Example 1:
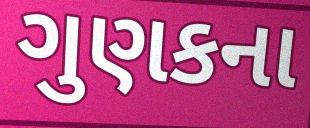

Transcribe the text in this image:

ગુણકના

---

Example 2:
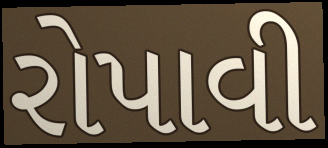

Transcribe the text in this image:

રોપાવી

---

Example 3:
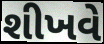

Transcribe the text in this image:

શીખવે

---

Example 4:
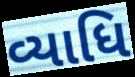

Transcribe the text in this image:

વ્યાધિ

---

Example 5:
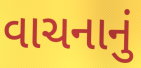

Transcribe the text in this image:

વાચનાનું